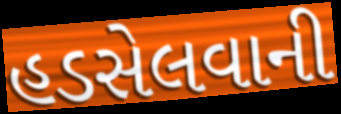
હડસેલવાની